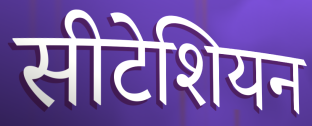
सीटेशियन